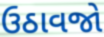
ઉઠાવજો